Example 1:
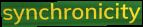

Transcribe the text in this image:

synchronicity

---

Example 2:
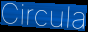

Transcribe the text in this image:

Circula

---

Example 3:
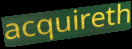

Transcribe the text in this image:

acquireth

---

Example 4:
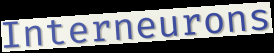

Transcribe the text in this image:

Interneurons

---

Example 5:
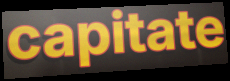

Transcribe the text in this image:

capitate